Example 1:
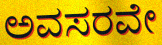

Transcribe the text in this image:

ಅವಸರವೇ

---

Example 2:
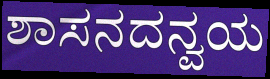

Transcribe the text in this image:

ಶಾಸನದನ್ವಯ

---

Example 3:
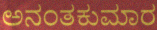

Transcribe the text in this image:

ಅನಂತಕುಮಾರ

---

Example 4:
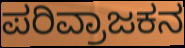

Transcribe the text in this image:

ಪರಿವ್ರಾಜಕನ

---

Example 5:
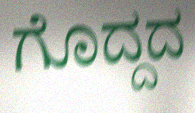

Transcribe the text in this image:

ಗೊದ್ದದ